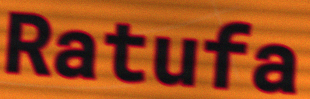
Ratufa